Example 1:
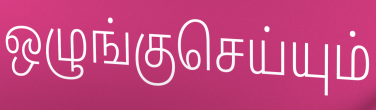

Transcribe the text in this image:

ஒழுங்குசெய்யும்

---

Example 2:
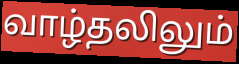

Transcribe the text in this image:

வாழ்தலிலும்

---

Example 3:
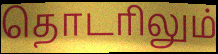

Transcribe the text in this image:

தொடரிலும்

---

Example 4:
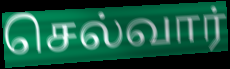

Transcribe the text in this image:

செல்வார்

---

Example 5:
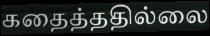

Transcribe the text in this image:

கதைத்ததில்லை